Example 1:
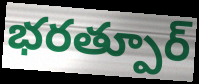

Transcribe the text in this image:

భరత్పూర్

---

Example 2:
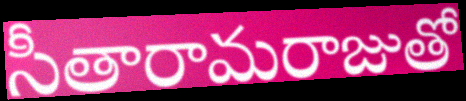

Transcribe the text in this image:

సీతారామరాజుతో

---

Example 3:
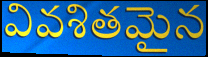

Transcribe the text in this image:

వివశితమైన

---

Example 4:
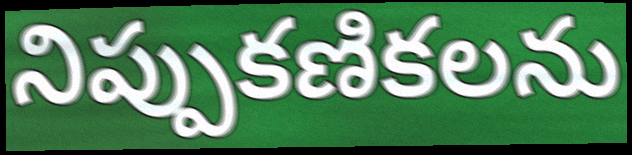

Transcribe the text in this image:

నిప్పుకణికలను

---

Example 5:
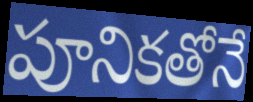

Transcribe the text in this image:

పూనికతోనే